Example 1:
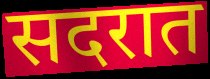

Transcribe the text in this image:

सदरात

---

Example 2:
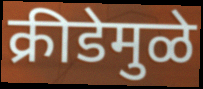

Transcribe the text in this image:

क्रीडेमुळे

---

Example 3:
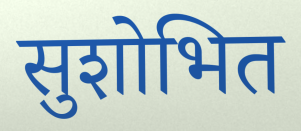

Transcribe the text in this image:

सुशोभित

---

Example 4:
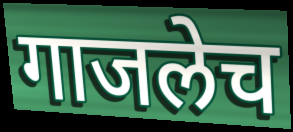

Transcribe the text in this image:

गाजलेच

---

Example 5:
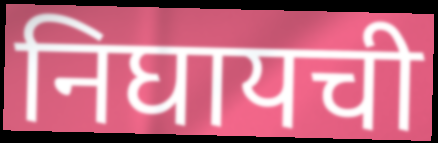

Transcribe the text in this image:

निघायची